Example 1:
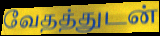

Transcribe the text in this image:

வேதத்துடன்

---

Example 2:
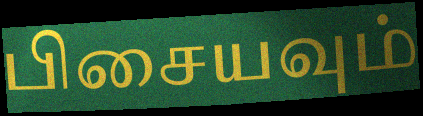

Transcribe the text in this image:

பிசையவும்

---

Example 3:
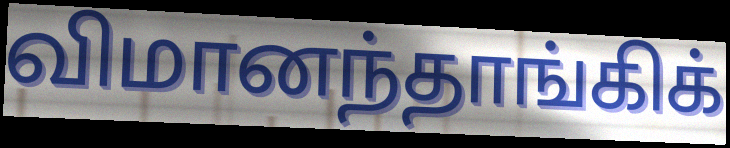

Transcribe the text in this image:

விமானந்தாங்கிக்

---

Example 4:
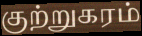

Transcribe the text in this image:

குற்றுகரம்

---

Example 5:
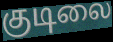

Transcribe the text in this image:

குடிலை